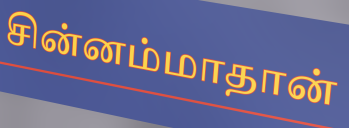
சின்னம்மாதான்